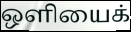
ஒளியைக்